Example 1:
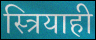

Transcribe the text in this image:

स्त्रियाही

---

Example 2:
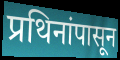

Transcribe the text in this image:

प्रथिनांपासून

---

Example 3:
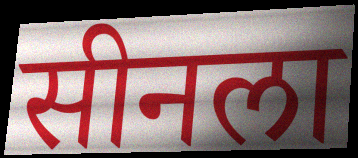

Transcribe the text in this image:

सीनला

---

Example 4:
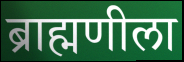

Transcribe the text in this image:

ब्राह्मणीला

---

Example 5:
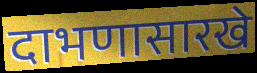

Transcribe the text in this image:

दाभणासारखे